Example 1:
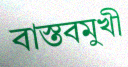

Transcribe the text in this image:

বাস্তবমুখী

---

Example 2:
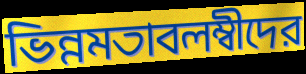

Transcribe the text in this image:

ভিন্নমতাবলম্বীদের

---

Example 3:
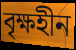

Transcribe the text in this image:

বৃক্ষহীন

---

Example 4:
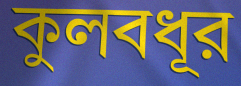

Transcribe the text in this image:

কুলবধূর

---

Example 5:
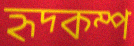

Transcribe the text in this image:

হৃদ্কম্প